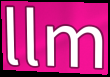
llm